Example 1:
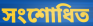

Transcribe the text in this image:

সংশোধিত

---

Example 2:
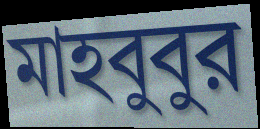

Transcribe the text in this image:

মাহবুবুর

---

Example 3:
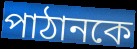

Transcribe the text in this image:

পাঠানকে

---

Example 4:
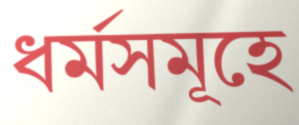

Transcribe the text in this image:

ধর্মসমূহে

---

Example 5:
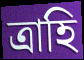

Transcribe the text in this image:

ত্রাহি